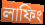
লাফিং